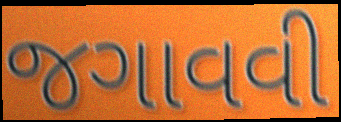
જગાવવી